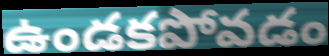
ఉండకపోవడం